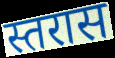
स्तरास